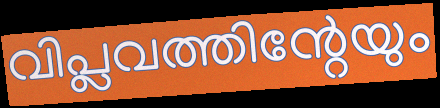
വിപ്ലവത്തിന്റേയും